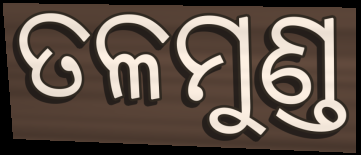
ତଳମୁଣ୍ଡ